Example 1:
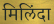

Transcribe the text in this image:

मिलिंदा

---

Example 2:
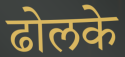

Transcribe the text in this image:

ढोलके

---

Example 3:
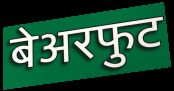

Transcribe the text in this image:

बेअरफुट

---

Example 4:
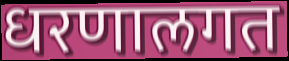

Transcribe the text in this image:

धरणालगत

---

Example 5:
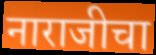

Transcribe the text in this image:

नाराजीचा